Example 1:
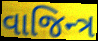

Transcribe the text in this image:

વાજિન્ત્ર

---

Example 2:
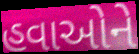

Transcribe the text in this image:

હવાઓને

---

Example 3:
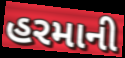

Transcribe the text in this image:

હરમાની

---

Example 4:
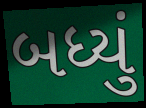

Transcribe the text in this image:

બધ્યું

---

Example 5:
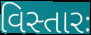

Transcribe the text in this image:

વિસ્તારઃ